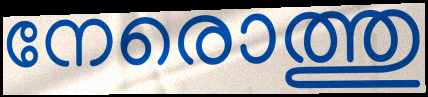
നേരൊത്തു